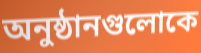
অনুষ্ঠানগুলোকে